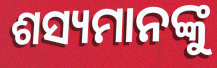
ଶସ୍ୟମାନଙ୍କୁ